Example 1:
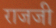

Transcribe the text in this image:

राजजी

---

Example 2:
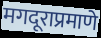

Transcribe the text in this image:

मगदूराप्रमाणे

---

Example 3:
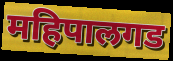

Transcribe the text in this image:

महिपालगड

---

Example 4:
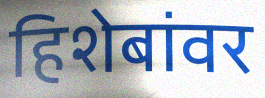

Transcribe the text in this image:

हिशेबांवर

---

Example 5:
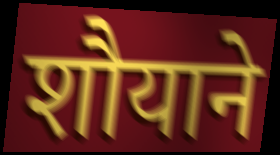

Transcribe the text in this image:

शौयाने